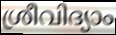
ശ്രീവിദ്യാം